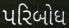
પરિબોધ